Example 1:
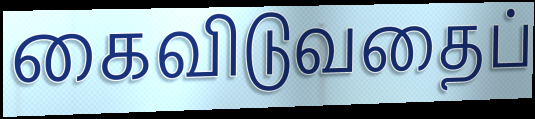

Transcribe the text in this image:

கைவிடுவதைப்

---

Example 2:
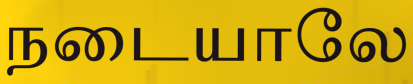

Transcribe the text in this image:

நடையாலே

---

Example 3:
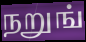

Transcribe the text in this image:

நறுங்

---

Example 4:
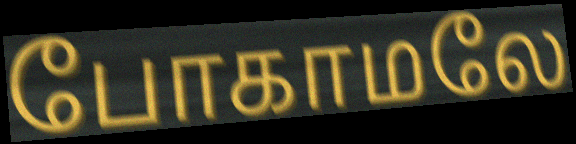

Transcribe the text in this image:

போகாமலே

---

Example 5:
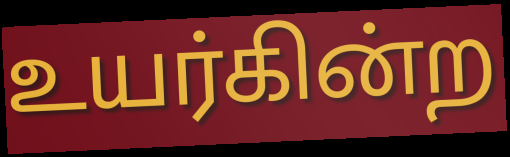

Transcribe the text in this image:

உயர்கின்ற